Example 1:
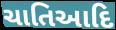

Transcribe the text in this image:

ચાતિઆદિ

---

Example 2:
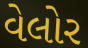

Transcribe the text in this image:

વેલોર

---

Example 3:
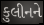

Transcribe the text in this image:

કુલીનને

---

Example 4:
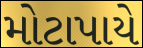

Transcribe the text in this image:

મોટાપાયે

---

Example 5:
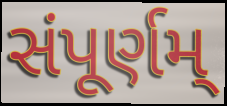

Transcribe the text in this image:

સંપૂર્ણમ્